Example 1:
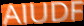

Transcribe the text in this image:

AIUDF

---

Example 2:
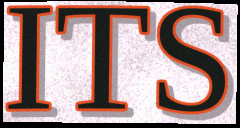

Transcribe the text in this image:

ITS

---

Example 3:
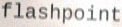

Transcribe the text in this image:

flashpoint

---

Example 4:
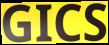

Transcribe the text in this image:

GICS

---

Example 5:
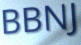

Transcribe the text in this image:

BBNJ